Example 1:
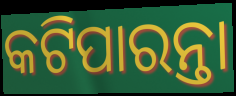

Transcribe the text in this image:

କଟିପାରନ୍ତା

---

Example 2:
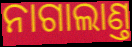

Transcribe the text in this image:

ନାଗାଲାଣ୍ତ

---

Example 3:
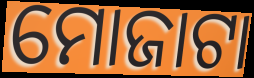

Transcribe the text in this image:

ମୋଜାଟା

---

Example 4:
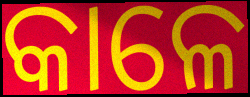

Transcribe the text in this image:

କାଳେ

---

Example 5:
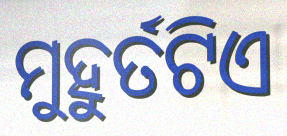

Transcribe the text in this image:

ମୁହୁର୍ତଟିଏ